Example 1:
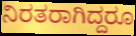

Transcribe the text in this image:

ನಿರತರಾಗಿದ್ದರೂ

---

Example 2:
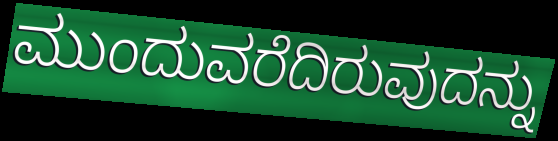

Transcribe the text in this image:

ಮುಂದುವರೆದಿರುವುದನ್ನು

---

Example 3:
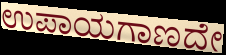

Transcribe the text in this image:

ಉಪಾಯಗಾಣದೇ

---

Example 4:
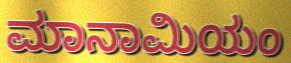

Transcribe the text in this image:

ಮಾನಾಮಿಯಂ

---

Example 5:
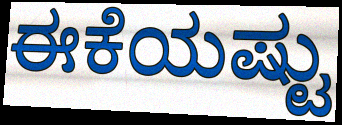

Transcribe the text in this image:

ಈಕೆಯಷ್ಟು